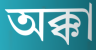
অক্কা